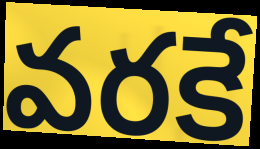
వరకే